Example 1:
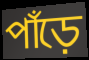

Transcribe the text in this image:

পাঁড়ে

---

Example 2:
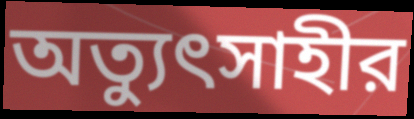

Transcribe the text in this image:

অত্যুৎসাহীর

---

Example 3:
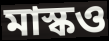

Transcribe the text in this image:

মাস্কও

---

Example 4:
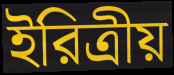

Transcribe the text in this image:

ইরিত্রীয়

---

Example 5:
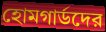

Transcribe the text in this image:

হোমগার্ডদের